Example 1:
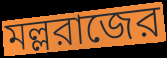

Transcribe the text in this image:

মল্লরাজের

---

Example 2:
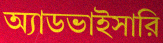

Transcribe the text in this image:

অ্যাডভাইসারি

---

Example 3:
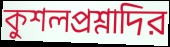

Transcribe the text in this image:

কুশলপ্রশ্নাদির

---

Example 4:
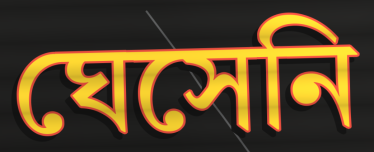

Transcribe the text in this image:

ঘেসেনি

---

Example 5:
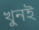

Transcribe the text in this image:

খুনই